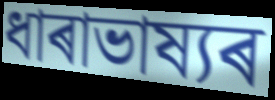
ধাৰাভাষ্যৰ